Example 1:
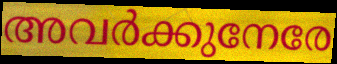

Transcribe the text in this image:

അവർക്കുനേരേ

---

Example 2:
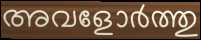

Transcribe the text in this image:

അവളോർത്തു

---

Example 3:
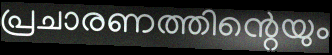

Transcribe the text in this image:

പ്രചാരണത്തിന്റെയും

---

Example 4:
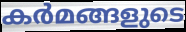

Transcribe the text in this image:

കർമങ്ങളുടെ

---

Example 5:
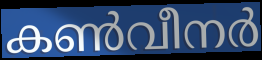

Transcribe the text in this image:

കൺവീനർ